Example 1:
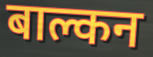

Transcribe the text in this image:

बाल्कन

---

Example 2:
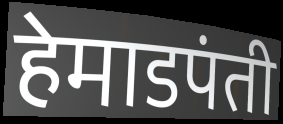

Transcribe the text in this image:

हेमाडपंती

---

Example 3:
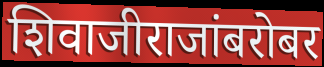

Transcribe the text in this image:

शिवाजीराजांबरोबर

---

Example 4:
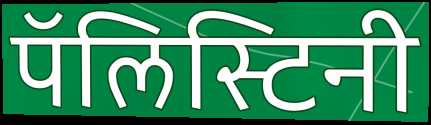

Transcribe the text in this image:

पॅलिस्टिनी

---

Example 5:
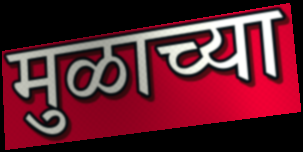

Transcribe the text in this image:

मुळाच्या